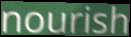
nourish